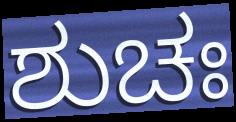
ಶುಚಃ